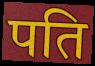
पति